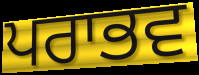
ਪਰਾਭਵ